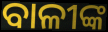
ବାଳୀଙ୍କ